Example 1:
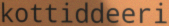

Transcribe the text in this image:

kottiddeeri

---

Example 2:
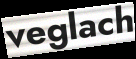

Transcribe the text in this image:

veglach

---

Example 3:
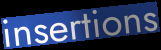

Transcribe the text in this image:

insertions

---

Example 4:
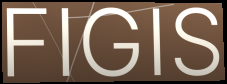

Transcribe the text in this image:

FIGIS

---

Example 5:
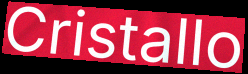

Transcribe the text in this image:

Cristallo